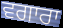
ਵਗਾਰਾ